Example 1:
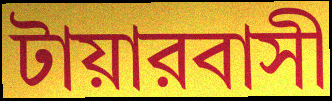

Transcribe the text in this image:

টায়ারবাসী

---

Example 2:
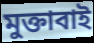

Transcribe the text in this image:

মুক্তাবাই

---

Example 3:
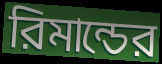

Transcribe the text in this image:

রিমান্ডের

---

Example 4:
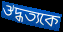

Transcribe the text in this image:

ঔদ্ধত্যকে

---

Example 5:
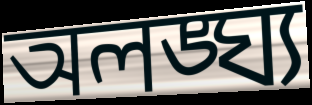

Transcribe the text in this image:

অলঙ্ঘ্য